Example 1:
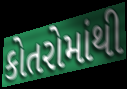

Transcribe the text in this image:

કોતરોમાંથી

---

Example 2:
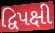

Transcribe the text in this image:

દ્વિપક્ષી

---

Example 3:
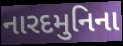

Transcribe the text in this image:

નારદમુનિના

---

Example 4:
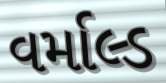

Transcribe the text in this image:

વર્માલ્ડ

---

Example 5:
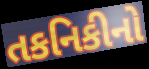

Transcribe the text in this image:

તકનિકીનો